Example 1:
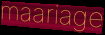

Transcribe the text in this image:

maariage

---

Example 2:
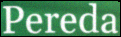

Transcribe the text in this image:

Pereda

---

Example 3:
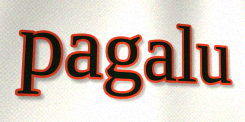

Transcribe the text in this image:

pagalu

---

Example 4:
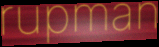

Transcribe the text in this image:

rupman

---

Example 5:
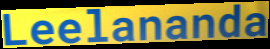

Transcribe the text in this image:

Leelananda